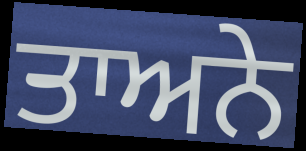
ਤਾਅਨੇ